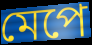
মেপে